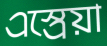
এস্ত্রেয়া